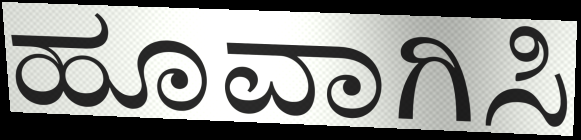
ಹೂವಾಗಿಸಿ